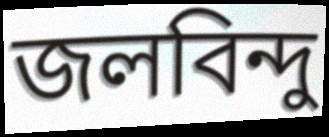
জলবিন্দু